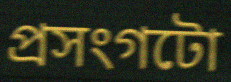
প্ৰসংগটো